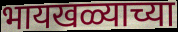
भायखळ्याच्या